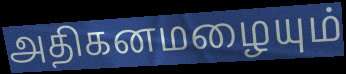
அதிகனமழையும்